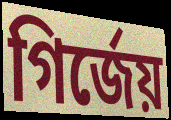
গির্জেয়